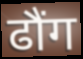
ढौंग